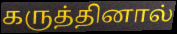
கருத்தினால்